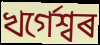
খৰ্গেশ্বৰ